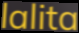
lalita